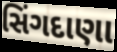
સિંગદાણા